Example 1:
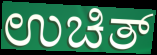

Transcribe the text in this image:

ಉಚಿತ್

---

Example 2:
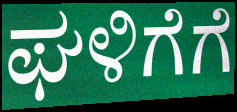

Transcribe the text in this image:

ಘಳಿಗೆಗೆ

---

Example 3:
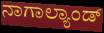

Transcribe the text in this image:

ನಾಗಾಲ್ಯಾಂಡ್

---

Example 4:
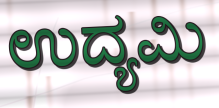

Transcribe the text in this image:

ಉದ್ಯಮಿ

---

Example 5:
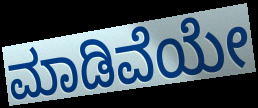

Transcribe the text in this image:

ಮಾಡಿವೆಯೇ